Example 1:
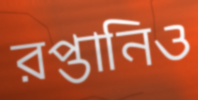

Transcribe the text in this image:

রপ্তানিও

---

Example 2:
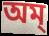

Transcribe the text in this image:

অম্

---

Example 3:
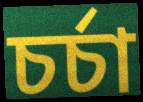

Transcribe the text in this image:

চর্চা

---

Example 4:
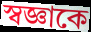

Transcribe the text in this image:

স্বজ্ঞাকে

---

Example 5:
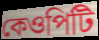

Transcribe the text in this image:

কেওপিটি